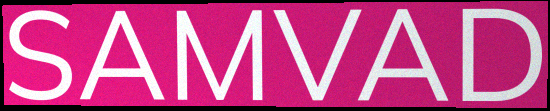
SAMVAD